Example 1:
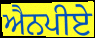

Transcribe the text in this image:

ਐਨਪੀਏ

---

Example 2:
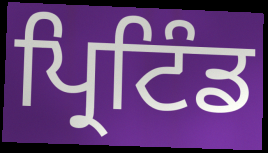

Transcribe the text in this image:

ਪ੍ਰਿਟਿੰਡ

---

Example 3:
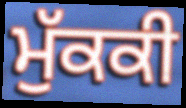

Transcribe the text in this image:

ਮੁੱਕਕੀ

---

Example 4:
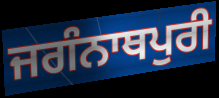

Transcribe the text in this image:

ਜਗੰਨਾਥਪੁਰੀ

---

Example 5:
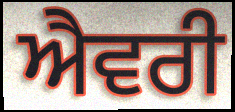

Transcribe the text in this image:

ਐਵਰੀ